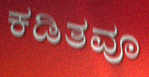
ಕಡಿತವೂ